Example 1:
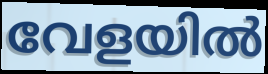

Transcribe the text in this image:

വേളയിൽ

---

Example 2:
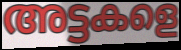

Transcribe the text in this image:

അട്ടകളെ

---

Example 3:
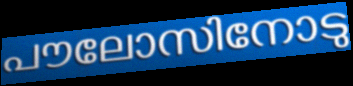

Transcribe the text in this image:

പൗലോസിനോടു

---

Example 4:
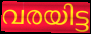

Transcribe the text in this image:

വരയിട്ട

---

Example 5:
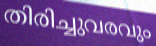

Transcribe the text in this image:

തിരിച്ചുവരവും